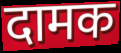
दामक